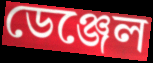
ডেঞ্জেল